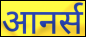
आनर्स